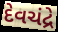
દેવચંદ્રે